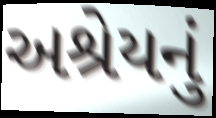
અશ્રેયનું